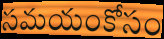
సమయంకోసం